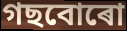
গছবোৰো